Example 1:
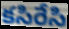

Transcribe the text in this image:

కసిరేసి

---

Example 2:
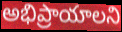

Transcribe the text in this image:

అభిప్రాయాలని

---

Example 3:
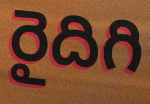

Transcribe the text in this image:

రైదిగి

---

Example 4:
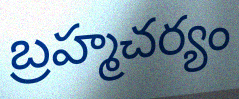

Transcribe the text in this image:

బ్రహ్మచర్యం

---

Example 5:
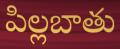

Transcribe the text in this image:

పిల్లబాతు